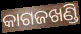
କାଗଜଖଣ୍ଡି